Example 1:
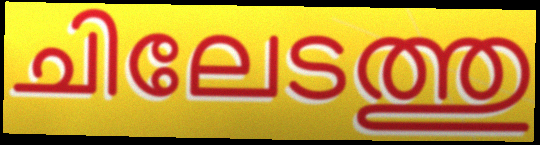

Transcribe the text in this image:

ചിലേടത്തു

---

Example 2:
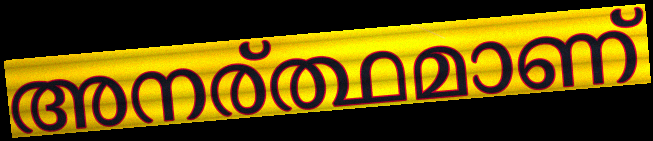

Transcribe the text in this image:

അനര്ത്ഥമാണ്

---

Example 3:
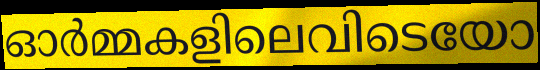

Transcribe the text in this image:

ഓർമ്മകളിലെവിടെയോ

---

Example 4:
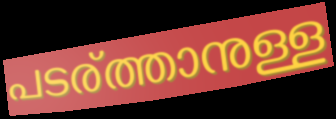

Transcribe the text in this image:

പടര്ത്താനുള്ള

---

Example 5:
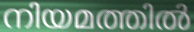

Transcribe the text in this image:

നിയമത്തിൽ